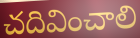
చదివించాలి